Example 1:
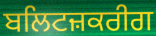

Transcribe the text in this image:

ਬਲਿਟਜ਼ਕਰੀਗ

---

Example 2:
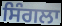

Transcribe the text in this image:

ਸਿੰਗਲਾ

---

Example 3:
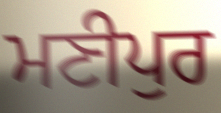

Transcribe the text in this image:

ਮਣੀਪੁਰ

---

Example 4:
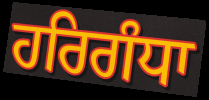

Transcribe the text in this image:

ਹਰਿਗੰਧਾ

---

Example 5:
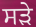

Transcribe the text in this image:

ਸੜੇ